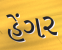
હેંગર